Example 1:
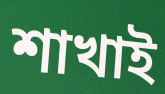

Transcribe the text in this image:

শাখাই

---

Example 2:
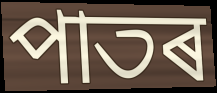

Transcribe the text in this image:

পাতৰ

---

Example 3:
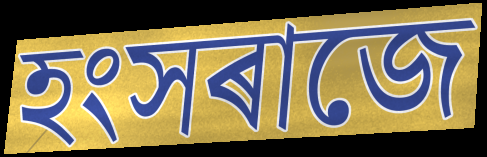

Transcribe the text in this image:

হংসৰাজে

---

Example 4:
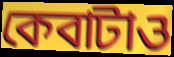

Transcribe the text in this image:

কেবাটাও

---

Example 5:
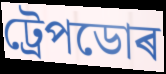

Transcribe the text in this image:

ট্ৰেপডোৰ